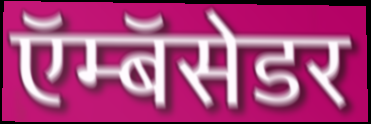
ऍम्बॅसेडर